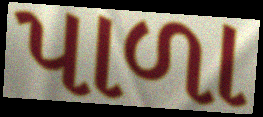
પાળા